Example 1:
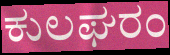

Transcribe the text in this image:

ಕುಲಘರಂ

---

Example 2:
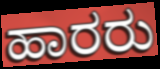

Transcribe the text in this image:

ಹಾರರು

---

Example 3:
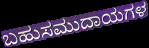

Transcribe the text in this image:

ಬಹುಸಮುದಾಯಗಳ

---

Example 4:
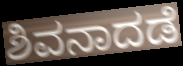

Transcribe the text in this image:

ಶಿವನಾದಡೆ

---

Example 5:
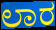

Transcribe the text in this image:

ಲಾರ